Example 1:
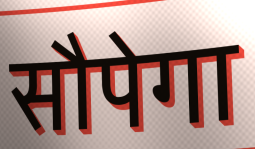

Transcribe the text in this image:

सौपेगा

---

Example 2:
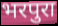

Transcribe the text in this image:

भरपुरा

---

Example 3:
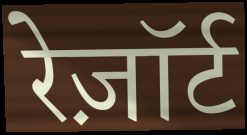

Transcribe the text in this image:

रेज़ॉर्ट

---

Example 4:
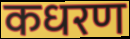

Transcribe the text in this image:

कधरण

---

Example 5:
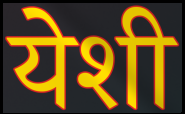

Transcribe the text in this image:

येशी